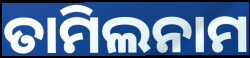
ତାମିଲନାମ